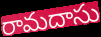
రామదాసు